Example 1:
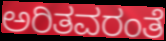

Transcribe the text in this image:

ಅರಿತವರಂತೆ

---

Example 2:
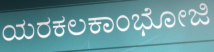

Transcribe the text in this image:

ಯರಕಲಕಾಂಭೋಜಿ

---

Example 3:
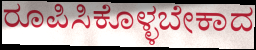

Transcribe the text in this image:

ರೂಪಿಸಿಕೊಳ್ಳಬೇಕಾದ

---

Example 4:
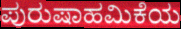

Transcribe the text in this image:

ಪುರುಷಾಹಮಿಕೆಯ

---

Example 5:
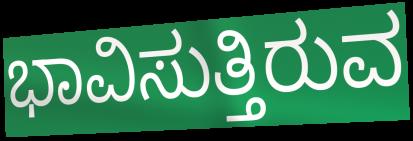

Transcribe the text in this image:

ಭಾವಿಸುತ್ತಿರುವ